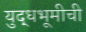
युद्धभूमीची